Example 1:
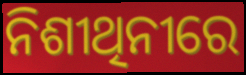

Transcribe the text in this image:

ନିଶୀଥିନୀରେ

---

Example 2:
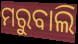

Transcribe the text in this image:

ମରୁବାଲି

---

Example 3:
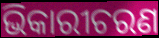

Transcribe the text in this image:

ଭିକାରୀଚରଣ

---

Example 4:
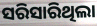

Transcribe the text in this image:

ସରିସାରିଥିଲା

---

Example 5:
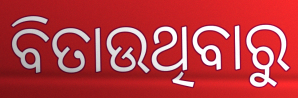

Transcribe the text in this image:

ବିତାଉଥିବାରୁ